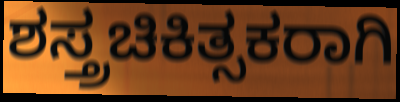
ಶಸ್ತ್ರಚಿಕಿತ್ಸಕರಾಗಿ